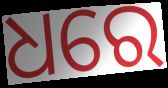
ଧରେ